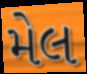
મેલ